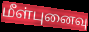
மீள்புனைவு